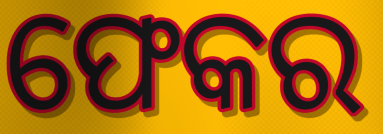
ଫେକର